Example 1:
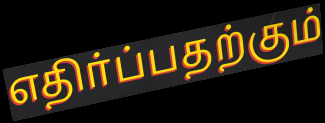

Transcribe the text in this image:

எதிர்ப்பதற்கும்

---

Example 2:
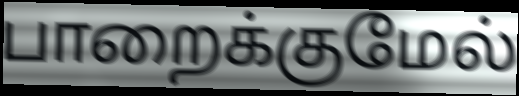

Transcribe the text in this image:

பாறைக்குமேல்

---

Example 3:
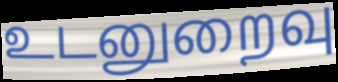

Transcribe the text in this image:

உடனுறைவு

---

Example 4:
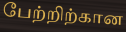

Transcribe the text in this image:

பேற்றிற்கான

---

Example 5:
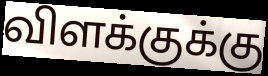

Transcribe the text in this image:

விளக்குக்கு